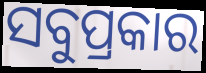
ସବୁପ୍ରକାର